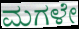
ಮಗಳೇ